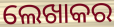
ଲେଖାକର